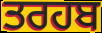
ਤਰਹਬ